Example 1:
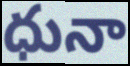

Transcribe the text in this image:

ధునా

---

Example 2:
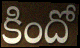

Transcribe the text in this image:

కిందో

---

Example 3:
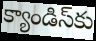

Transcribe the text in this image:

క్యాండిస్‌కు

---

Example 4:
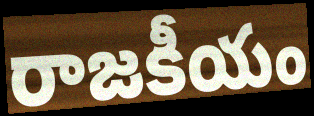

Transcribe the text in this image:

రాజకీయం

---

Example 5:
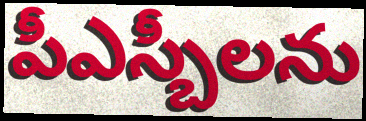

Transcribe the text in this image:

పీఎస్బీలను